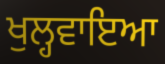
ਖੁਲ੍ਹਵਾਇਆ